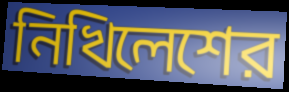
নিখিলেশের